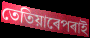
তেতিয়াৰেপৰাই